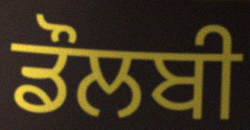
ਡੌਲਬੀ